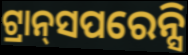
ଟ୍ରାନ୍‌ସପରେନ୍ସି